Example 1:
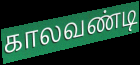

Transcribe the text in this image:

காலவண்டி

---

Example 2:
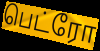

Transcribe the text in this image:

பெட்ரோ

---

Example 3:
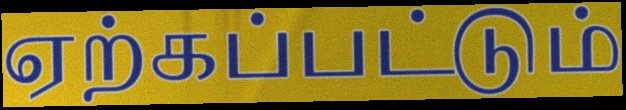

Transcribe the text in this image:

ஏற்கப்பட்டும்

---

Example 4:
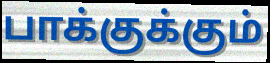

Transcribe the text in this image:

பாக்குக்கும்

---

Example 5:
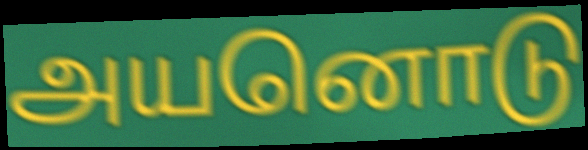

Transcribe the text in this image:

அயனொடு